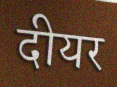
दीयर